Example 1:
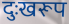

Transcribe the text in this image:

दुःखरूप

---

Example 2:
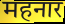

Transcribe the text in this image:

महनार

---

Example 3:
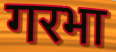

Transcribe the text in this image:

गरभा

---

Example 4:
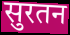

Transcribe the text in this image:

सुरतन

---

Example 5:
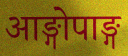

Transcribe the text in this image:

आङ्गोपाङ्ग